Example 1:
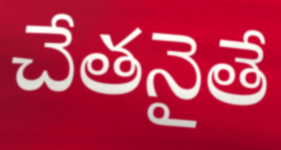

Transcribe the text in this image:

చేతనైతే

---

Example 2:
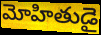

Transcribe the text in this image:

మోహితుడై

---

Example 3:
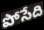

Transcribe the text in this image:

పోసేది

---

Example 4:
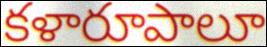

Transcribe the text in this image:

కళారూపాలూ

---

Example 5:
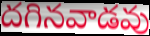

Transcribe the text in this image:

దగినవాడవు